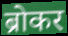
ब्रोकर